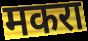
मकरा